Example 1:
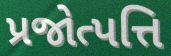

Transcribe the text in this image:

પ્રજોત્પત્તિ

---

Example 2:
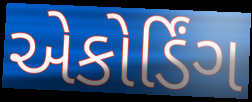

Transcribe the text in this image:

એકોર્ડિંગ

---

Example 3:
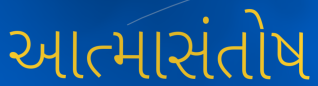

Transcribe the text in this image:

આત્માસંતોષ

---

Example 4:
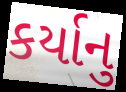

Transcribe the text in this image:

કર્યાનુ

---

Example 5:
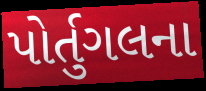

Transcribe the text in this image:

પોર્તુગલના